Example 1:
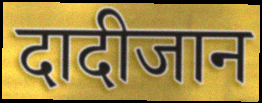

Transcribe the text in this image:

दादीजान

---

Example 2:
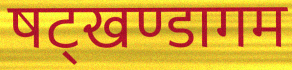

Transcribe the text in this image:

षट्खण्डागम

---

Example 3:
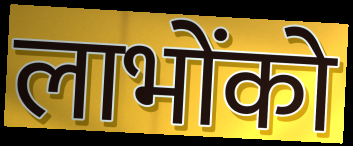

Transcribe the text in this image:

लाभोंको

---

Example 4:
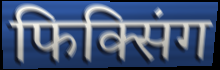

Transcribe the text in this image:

फिक्‍सिंग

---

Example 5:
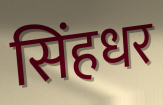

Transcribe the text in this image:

सिंहधर